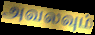
அவலவும்